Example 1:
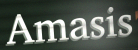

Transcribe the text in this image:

Amasis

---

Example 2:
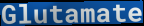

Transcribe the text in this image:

Glutamate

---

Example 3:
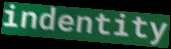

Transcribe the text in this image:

indentity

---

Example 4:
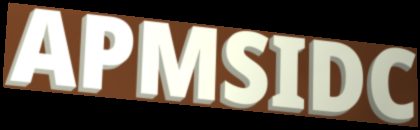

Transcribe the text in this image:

APMSIDC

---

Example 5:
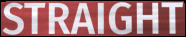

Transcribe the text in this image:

STRAIGHT